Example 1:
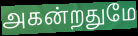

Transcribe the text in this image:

அகன்றதுமே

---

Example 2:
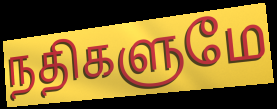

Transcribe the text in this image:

நதிகளுமே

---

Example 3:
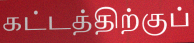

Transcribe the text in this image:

கட்டத்திற்குப்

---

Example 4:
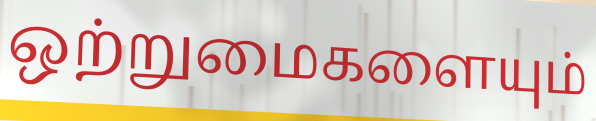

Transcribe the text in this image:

ஒற்றுமைகளையும்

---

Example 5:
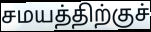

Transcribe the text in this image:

சமயத்திற்குச்